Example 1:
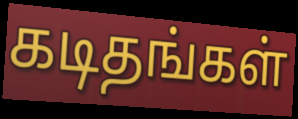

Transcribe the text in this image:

கடிதங்கள்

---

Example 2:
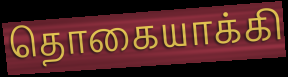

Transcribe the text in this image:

தொகையாக்கி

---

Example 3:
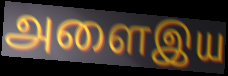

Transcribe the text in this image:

அளைஇய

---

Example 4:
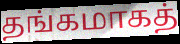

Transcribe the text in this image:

தங்கமாகத்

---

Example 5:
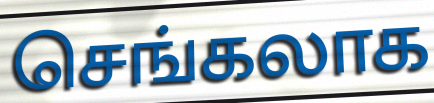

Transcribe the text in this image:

செங்கலாக